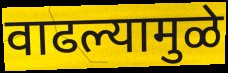
वाढल्यामुळे